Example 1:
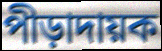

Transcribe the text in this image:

পীড়াদায়ক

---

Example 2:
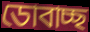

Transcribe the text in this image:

ডোবাচ্ছ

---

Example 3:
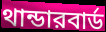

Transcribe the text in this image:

থান্ডারবার্ড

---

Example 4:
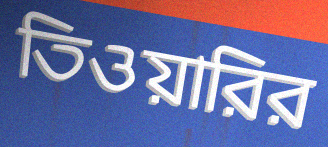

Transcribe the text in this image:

তিওয়ারির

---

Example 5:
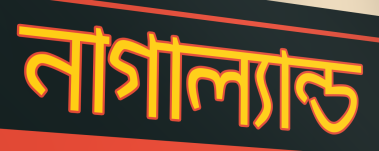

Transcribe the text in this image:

নাগাল্যান্ড